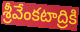
శ్రీవేంకటాద్రికి